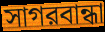
সাগরবান্ধা